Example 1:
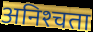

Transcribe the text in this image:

अनिश्चता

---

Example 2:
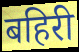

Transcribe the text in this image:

बहिरी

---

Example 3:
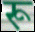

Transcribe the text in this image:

रू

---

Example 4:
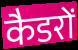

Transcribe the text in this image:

कैडरों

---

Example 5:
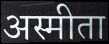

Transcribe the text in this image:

अस्मीता